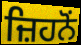
ਜ਼ਿਹਨੋਂ